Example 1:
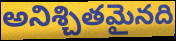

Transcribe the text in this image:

అనిశ్చితమైనది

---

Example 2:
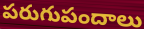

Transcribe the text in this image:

పరుగుపందాలు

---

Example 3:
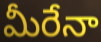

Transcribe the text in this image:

మీరేనా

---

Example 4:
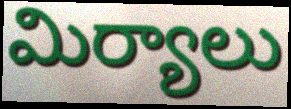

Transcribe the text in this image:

మిర్యాలు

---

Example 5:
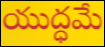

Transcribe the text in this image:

యుద్ధమే